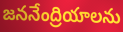
జననేంద్రియాలను